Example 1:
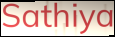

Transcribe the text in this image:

Sathiya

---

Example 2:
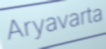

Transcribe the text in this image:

Aryavarta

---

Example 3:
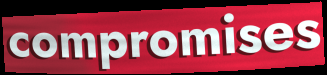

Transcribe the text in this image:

compromises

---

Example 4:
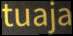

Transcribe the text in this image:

tuaja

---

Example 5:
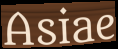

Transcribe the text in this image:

Asiae